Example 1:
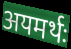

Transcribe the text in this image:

अयमर्थः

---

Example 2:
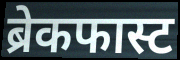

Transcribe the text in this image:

ब्रेकफास्ट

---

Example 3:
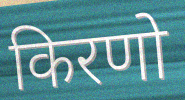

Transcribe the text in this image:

किरणो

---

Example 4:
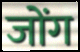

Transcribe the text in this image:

जोंग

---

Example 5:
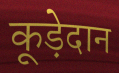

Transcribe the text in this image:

कूड़ेदान